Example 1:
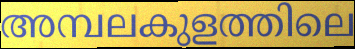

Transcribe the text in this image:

അമ്പലകുളത്തിലെ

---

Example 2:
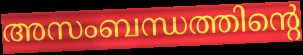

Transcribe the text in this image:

അസംബന്ധത്തിന്റെ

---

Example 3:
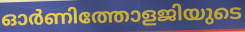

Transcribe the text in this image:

ഓർണിത്തോളജിയുടെ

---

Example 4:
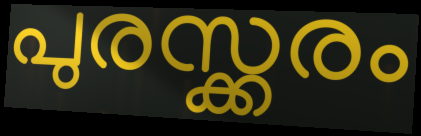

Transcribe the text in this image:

പുരസ്ക്കരം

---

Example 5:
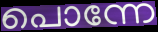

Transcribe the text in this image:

പൊന്നേ